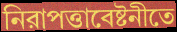
নিরাপত্তাবেষ্টনীতে